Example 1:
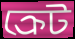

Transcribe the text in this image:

ক্রেট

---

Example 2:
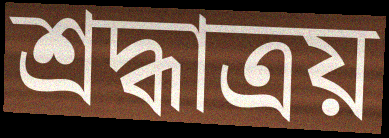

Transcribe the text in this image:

শ্রদ্ধাত্রয়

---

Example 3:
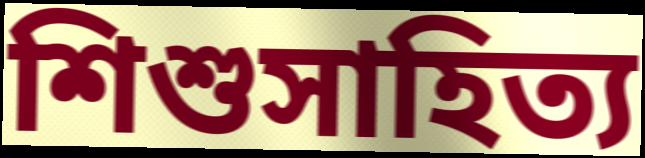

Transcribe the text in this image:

শিশুসাহিত্য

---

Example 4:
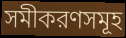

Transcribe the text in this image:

সমীকরণসমূহ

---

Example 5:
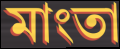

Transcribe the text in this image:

মাংতা